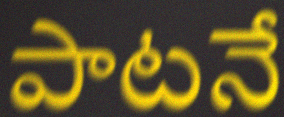
పాటనే